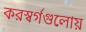
করস্বর্গগুলোয়